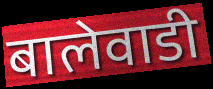
बालेवाडी